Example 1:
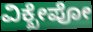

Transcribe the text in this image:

ವಿಕ್ಖೇಪೋ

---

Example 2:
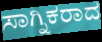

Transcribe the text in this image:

ಸಾಗ್ನಿಕರಾದ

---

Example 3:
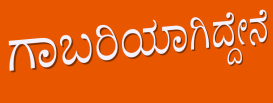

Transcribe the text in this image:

ಗಾಬರಿಯಾಗಿದ್ದೇನೆ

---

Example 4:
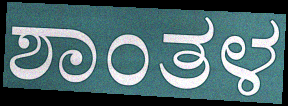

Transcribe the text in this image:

ಶಾಂತಳ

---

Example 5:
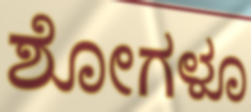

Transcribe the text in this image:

ಶೋಗಳೂ